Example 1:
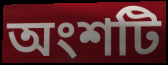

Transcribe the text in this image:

অংশটি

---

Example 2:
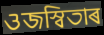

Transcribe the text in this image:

ওজস্বিতাৰ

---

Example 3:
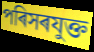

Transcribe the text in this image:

পৰিসৰযুক্ত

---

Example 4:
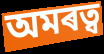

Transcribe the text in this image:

অমৰত্ব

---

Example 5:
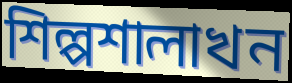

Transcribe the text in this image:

শিল্পশালাখন